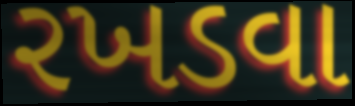
રખડવા